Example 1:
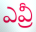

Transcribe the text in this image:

ఎవ్రీ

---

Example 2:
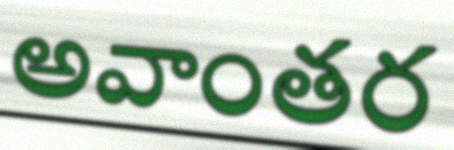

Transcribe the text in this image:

అవాంతర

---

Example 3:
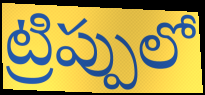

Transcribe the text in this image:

ట్రిప్పులో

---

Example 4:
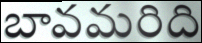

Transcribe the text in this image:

బావమరిది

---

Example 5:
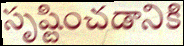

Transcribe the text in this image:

సృష్టించడానికి